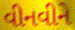
વીનવીને